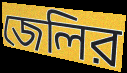
জেলির